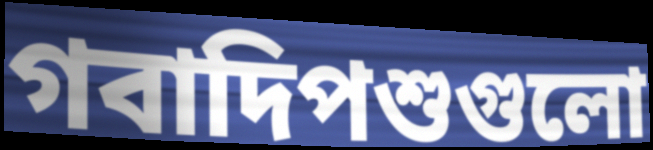
গবাদিপশুগুলো